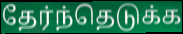
தேர்ந்தெடுக்க